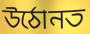
উঠোনত